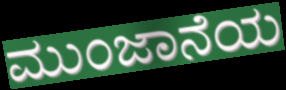
ಮುಂಜಾನೆಯ